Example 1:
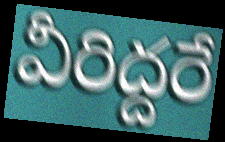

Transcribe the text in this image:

వీరిద్దరే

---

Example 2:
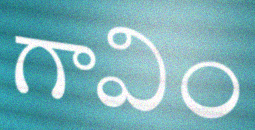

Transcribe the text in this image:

గావిం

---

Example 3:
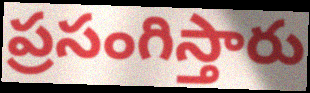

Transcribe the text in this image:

ప్రసంగిస్తారు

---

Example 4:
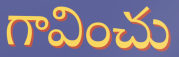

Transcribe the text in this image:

గావించు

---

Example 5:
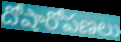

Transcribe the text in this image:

దోషారోపణలు